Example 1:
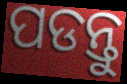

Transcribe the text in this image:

ପଡନ୍ତୁ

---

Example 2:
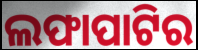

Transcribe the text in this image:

ଲଫାପାଟିର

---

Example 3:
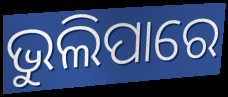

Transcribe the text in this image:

ଭୁଲିପାରେ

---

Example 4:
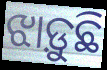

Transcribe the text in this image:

ଝାଡ଼ୁଛି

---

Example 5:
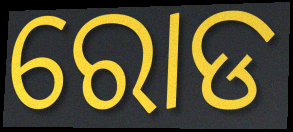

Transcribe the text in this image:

ରୋଡ